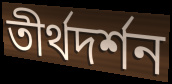
তীর্থদর্শন